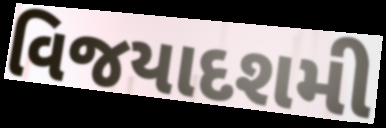
વિજયાદશમી